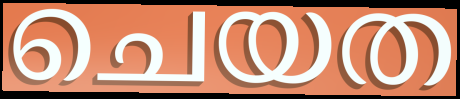
ചെയത